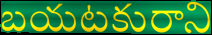
బయటకురాని